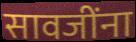
सावजींना